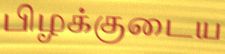
பிழக்குடைய